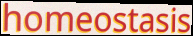
homeostasis